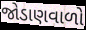
જોડાણવાળો